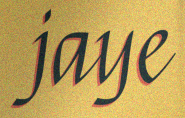
jaye